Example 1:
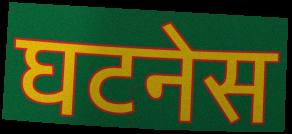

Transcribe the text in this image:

घटनेस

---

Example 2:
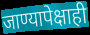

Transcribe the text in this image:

जाण्यापेक्षाही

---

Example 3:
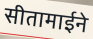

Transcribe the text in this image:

सीतामाईने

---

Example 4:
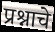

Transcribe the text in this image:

प्रश्नाचे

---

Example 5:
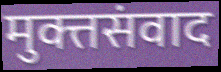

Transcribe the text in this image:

मुक्तसंवाद